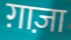
ग़ाज़ा